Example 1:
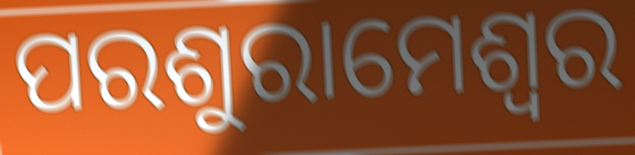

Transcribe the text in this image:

ପରଶୁରାମେଶ୍ୱର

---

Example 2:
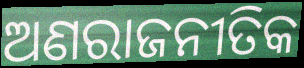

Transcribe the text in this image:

ଅଣରାଜନୀତିକ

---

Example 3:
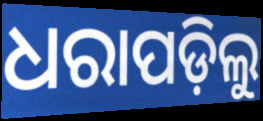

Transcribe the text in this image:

ଧରାପଡ଼ିଲୁ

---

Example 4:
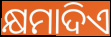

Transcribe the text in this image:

କ୍ଷମାଦିଏ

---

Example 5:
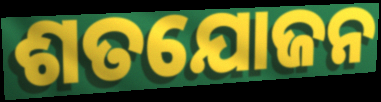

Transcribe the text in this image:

ଶତଯୋଜନ